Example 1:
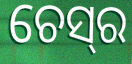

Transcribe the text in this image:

ଚେସ୍‌ର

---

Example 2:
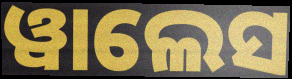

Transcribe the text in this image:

ୱାଲେସ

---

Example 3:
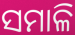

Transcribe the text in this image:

ସମାଳି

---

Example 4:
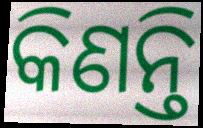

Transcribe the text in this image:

କିଣନ୍ତି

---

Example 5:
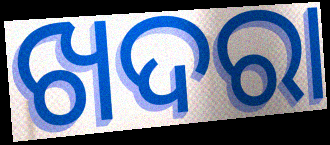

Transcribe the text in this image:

ଖଦରା